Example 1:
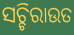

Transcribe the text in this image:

ସଚ୍ଚିରାଉତ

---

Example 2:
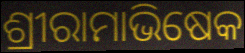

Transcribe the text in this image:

ଶ୍ରୀରାମାଭିଷେକ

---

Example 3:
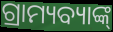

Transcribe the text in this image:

ଗ୍ରାମ୍ୟବ୍ୟାଙ୍କ୍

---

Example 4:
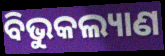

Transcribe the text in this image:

ବିଭୁକଲ୍ୟାଣ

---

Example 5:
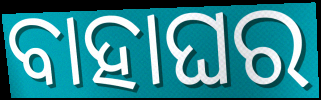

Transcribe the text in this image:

ବାହାଘର